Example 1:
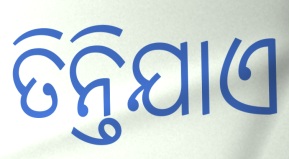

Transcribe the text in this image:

ତିନ୍ତିଯାଏ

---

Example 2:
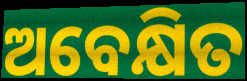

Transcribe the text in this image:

ଅବେକ୍ଷିତ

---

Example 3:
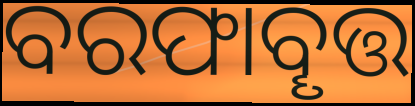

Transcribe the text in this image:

ବରଫାବୄତ୍ତ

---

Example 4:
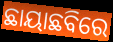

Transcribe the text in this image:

ଛାୟାଛବିରେ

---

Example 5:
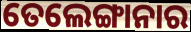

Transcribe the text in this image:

ତେଲେଙ୍ଗାନାର